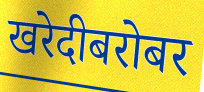
खरेदीबरोबर